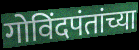
गोविंदपंतांच्या